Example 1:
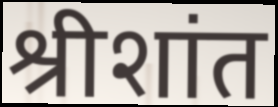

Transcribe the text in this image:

श्रीशांत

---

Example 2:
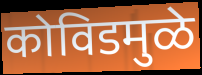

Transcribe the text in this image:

कोविडमुळे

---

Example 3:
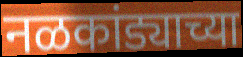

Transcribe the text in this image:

नळकांड्याच्या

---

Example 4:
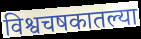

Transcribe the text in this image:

विश्वचषकातल्या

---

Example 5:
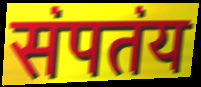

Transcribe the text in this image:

संपतंय